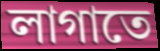
লাগাতে